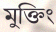
মুক্তিং